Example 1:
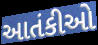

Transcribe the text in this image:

આતંકીઓ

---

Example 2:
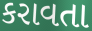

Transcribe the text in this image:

કરાવતા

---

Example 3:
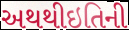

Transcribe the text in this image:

અથથીઇતિની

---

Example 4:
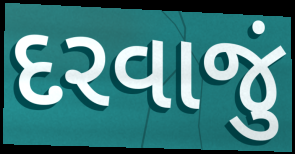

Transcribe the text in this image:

દરવાજું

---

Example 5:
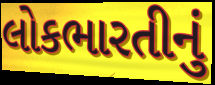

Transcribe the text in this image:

લોકભારતીનું